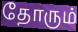
தோரும்